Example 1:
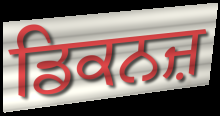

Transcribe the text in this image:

ਡਿਕਨਜ਼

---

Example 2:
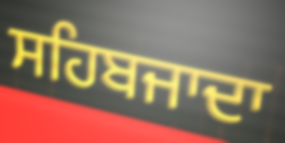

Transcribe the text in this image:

ਸਹਿਬਜਾਦਾ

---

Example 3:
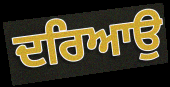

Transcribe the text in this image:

ਦਰਿਆਉ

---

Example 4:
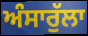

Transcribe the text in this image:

ਅੰਸਾਰੁੱਲਾ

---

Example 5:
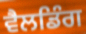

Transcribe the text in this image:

ਵੈਲਡਿੰਗ